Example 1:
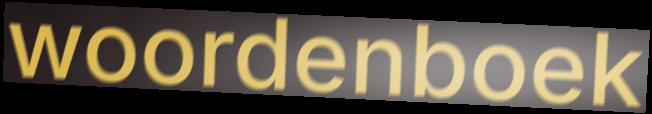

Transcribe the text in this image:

woordenboek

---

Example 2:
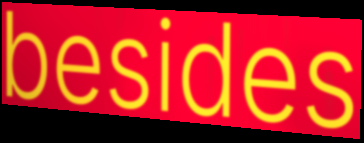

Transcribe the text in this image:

besides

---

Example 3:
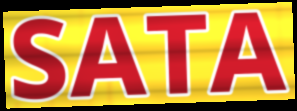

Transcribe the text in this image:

SATA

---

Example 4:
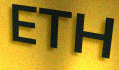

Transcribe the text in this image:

ETH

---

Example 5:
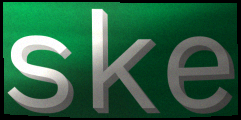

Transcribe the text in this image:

ske